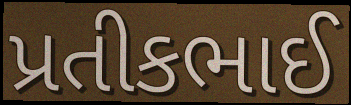
પ્રતીકભાઈ